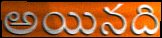
అయినది